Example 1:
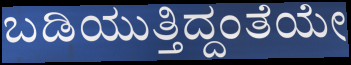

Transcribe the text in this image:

ಬಡಿಯುತ್ತಿದ್ದಂತೆಯೇ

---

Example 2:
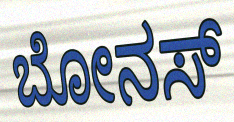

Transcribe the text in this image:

ಬೋನಸ್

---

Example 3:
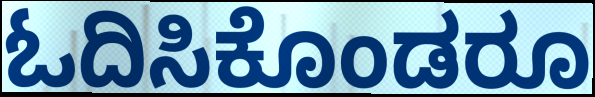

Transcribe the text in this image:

ಓದಿಸಿಕೊಂಡರೂ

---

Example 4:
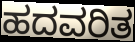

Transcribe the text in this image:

ಹದವರಿತ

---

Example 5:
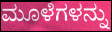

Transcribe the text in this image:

ಮೂಳೆಗಳನ್ನು